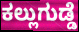
ಕಲ್ಲುಗುಡ್ಡೆ